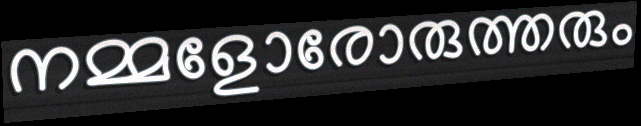
നമ്മളോരോരുത്തരും